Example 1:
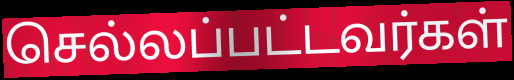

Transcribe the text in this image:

செல்லப்பட்டவர்கள்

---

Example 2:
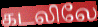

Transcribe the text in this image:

கடலிலே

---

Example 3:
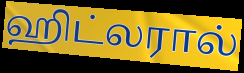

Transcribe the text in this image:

ஹிட்லரால்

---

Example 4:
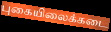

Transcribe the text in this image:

புகையிலைக்கடை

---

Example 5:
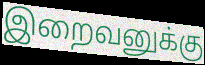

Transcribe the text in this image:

இறைவனுக்கு